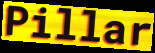
Pillar